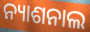
ନ୍ୟାଶନାଲ